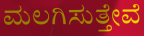
ಮಲಗಿಸುತ್ತೇವೆ